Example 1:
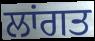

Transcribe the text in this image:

ਲਾਂਗਤ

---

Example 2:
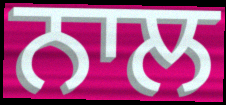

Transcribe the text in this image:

ਨਾਲ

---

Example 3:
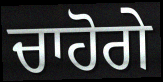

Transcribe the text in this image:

ਚਾਹੋਗੇ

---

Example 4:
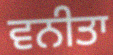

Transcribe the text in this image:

ਵਨੀਤਾ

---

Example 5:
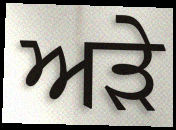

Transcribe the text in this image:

ਅੜੇ